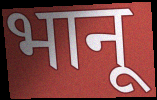
भानू